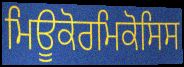
ਮਿਊਕੋਰਮਿਕੋਸਿਸ